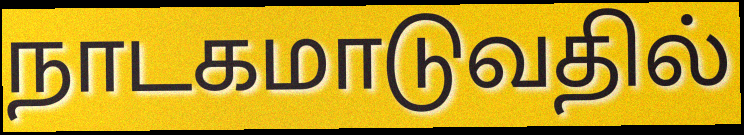
நாடகமாடுவதில்